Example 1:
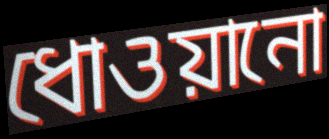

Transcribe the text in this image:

ধোওয়ানো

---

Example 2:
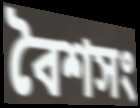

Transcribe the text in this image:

বৈশসং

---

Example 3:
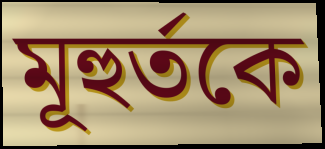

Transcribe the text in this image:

মূহুর্তকে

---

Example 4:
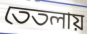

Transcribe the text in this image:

তেতলায়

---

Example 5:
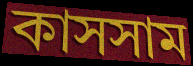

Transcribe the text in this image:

কাসসাম